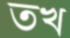
তখ